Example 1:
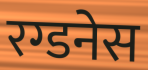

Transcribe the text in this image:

रग्डनेस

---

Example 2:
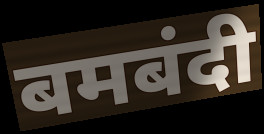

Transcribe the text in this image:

बमबंदी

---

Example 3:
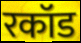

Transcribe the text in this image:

रकॉड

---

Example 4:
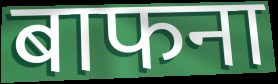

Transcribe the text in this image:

बाफना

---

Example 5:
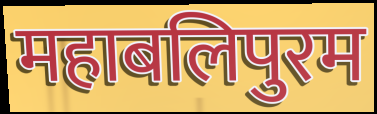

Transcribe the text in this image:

महाबलिपुरम